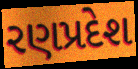
રણપ્રદેશ